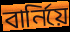
বার্নিয়ে